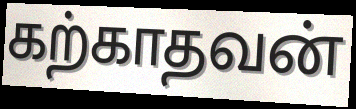
கற்காதவன்